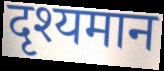
दृश्यमान